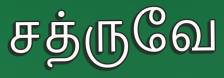
சத்ருவே